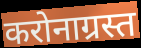
करोनाग्रस्त